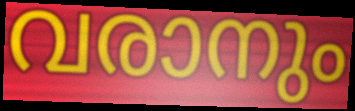
വരാനും